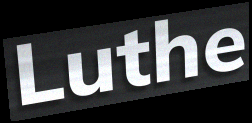
Luthe